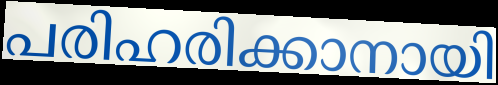
പരിഹരിക്കാനായി